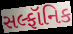
સલ્ફૉનિક